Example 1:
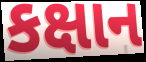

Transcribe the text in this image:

કક્ષાન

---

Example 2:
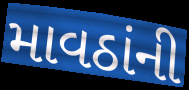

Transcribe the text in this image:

માવઠાંની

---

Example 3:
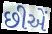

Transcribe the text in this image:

છીએં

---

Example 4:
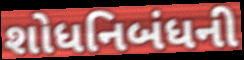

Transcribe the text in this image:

શોધનિબંધની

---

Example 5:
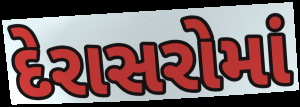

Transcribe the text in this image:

દેરાસરોમાં